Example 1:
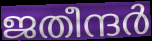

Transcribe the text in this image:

ജതീന്ദർ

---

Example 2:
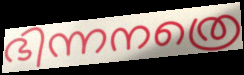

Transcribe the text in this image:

ഭിന്നനത്രെ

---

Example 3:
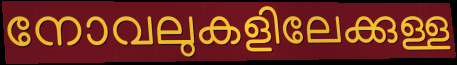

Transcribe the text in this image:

നോവലുകളിലേക്കുള്ള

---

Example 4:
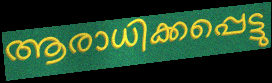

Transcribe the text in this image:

ആരാധിക്കപ്പെട്ടു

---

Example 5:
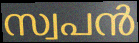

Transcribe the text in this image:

സ്വപൻ